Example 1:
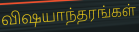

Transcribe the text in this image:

விஷயாந்தரங்கள்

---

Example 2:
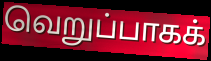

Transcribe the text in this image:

வெறுப்பாகக்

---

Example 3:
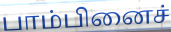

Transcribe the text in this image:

பாம்பினைச்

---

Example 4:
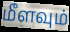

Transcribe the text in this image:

மீளவும்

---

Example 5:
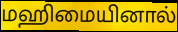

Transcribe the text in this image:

மஹிமையினால்